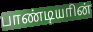
பாண்டியரின்